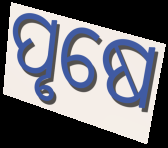
ପୃଷେ